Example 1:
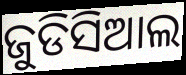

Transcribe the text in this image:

ଜୁଡିସିଆଲ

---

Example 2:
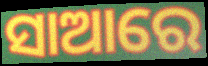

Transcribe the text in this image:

ସାଆରେ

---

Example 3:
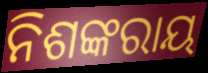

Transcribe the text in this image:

ନିଶଙ୍କରାୟ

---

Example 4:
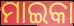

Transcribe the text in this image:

ମାଇକା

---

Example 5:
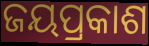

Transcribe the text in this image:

ଜୟପ୍ରକାଶ